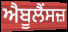
ਐਬੂਲੈਂਸਜ਼